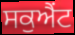
ਸਕੁਐਂਟ